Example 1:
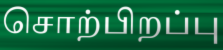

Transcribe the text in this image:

சொற்பிறப்பு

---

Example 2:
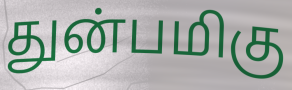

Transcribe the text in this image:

துன்பமிகு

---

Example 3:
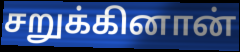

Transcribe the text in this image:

சறுக்கினான்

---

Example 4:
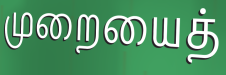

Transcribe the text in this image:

முறையைத்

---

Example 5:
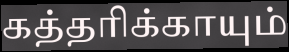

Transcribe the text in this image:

கத்தரிக்காயும்